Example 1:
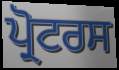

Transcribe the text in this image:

ਪ੍ਰੋਟਰਸ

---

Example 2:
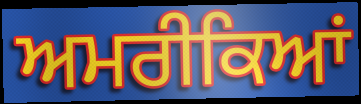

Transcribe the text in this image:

ਅਮਰੀਕਿਆਂ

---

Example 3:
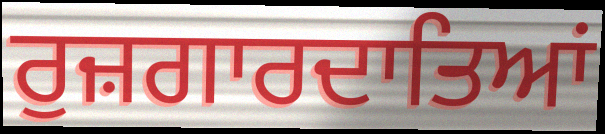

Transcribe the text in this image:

ਰੁਜ਼ਗਾਰਦਾਤਿਆਂ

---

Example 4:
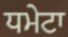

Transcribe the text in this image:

ਧਮੇਟਾ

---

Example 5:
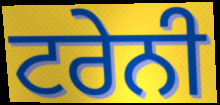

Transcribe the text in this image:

ਟਰੇਨੀ